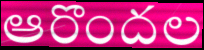
ఆరొందల